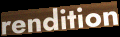
rendition